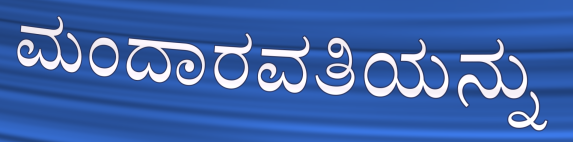
ಮಂದಾರವತಿಯನ್ನು